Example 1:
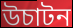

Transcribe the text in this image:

উচাটন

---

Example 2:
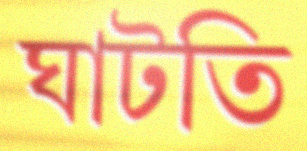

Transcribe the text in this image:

ঘাটতি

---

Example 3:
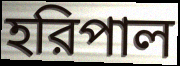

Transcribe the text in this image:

হরিপাল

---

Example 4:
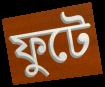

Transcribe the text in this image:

ফুটে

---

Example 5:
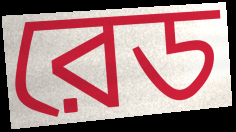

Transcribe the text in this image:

রেড